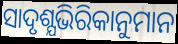
ସାଦୃଶ୍ଯଭିରିକାନୁମାନ